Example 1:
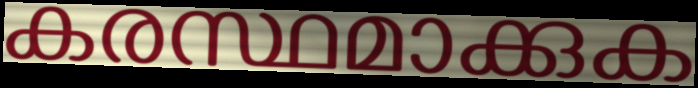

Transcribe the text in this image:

കരസ്ഥമാക്കുക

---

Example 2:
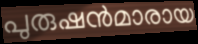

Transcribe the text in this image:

പുരുഷൻമാരായ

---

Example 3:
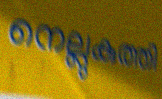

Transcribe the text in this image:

നെല്ലുകുത്തി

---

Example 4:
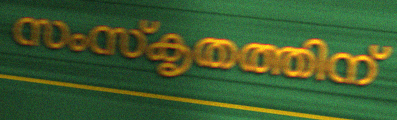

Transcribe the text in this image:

സംസ്കൃതത്തിന്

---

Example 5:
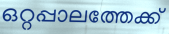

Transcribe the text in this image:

ഒറ്റപ്പാലത്തേക്ക്